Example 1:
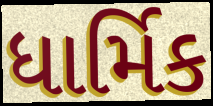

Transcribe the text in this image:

ધાર્મિક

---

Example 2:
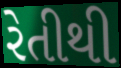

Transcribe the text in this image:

રેતીથી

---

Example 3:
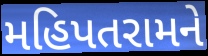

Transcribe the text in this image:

મહિપતરામને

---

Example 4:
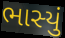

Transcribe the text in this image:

ભાસ્યું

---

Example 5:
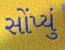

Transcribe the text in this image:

સોંપ્યું